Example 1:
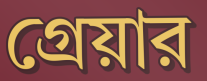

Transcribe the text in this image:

গ্রেয়ার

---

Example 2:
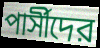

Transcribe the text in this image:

পার্সীদের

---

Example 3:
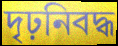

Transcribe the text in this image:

দৃঢ়নিবদ্ধ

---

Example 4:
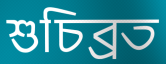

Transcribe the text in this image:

শুচিব্রত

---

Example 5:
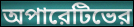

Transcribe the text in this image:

অপারেটিভের